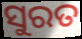
ସୁରତ